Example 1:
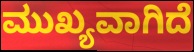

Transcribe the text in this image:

ಮುಖ್ಯವಾಗಿದೆ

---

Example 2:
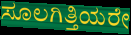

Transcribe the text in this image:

ಸೂಲಗಿತ್ತಿಯರೇ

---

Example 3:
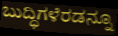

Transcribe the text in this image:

ಬುದ್ಧಿಗಳೆರಡನ್ನೂ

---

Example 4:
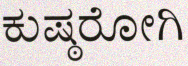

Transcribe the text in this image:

ಕುಷ್ಠರೋಗಿ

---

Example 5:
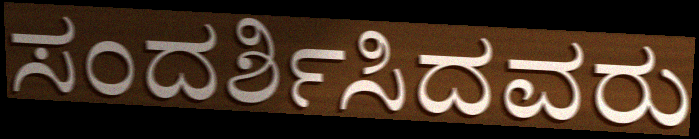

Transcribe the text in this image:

ಸಂದರ್ಶಿಸಿದವರು